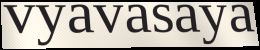
vyavasaya